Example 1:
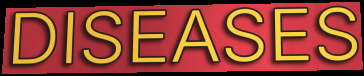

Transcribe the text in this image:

DISEASES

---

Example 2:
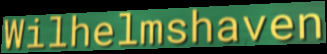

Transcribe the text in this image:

Wilhelmshaven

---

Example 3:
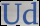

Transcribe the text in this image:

Ud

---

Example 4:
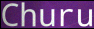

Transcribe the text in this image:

Churu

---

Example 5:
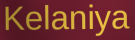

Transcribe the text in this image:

Kelaniya